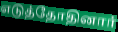
எடுத்தோதினார்